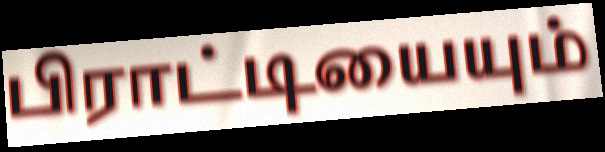
பிராட்டியையும்